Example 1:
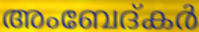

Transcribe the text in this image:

അംബേദ്കർ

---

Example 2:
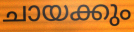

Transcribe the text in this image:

ചായക്കും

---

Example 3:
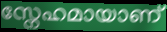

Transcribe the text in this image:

സ്നേഹമായാണ്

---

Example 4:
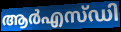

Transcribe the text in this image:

ആർഎസ്ഡി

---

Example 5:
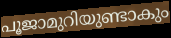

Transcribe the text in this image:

പൂജാമുറിയുണ്ടാകും